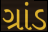
ગ્રાંડ